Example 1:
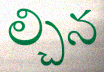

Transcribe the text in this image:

ల్చిన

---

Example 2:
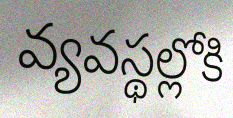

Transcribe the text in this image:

వ్యవస్థల్లోకి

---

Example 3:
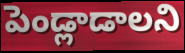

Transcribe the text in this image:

పెండ్లాడాలని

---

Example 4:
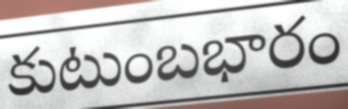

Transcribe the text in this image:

కుటుంబభారం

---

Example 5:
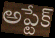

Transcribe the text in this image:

అప్టేక్